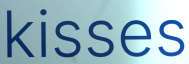
kisses